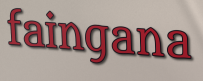
faingana